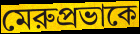
মেরুপ্রভাকে